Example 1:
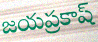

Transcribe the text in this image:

జయప్రకాష్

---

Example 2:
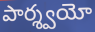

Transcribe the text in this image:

పార్శ్వయో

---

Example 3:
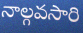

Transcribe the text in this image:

నాల్గవసారి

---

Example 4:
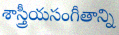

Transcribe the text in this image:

శాస్త్రీయసంగీతాన్ని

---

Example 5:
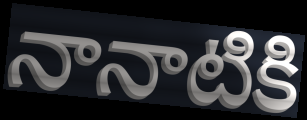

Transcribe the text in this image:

నానాటికి